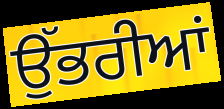
ਉੱਭਰੀਆਂ